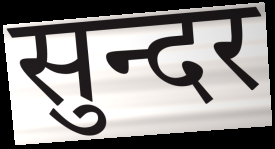
सुन्दर